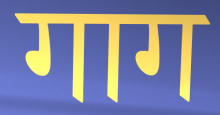
गाग